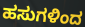
ಹಸುಗಳಿಂದ